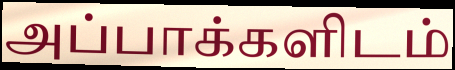
அப்பாக்களிடம்